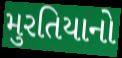
મુરતિયાનો